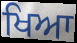
ਖਿਆ